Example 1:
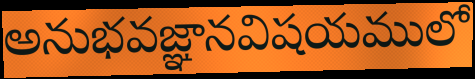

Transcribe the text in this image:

అనుభవజ్ఞానవిషయములో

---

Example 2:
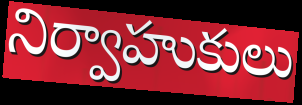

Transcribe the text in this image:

నిర్వాహుకులు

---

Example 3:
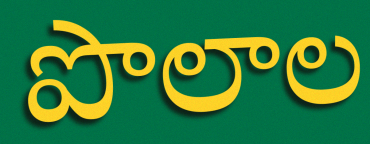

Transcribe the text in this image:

పొలాల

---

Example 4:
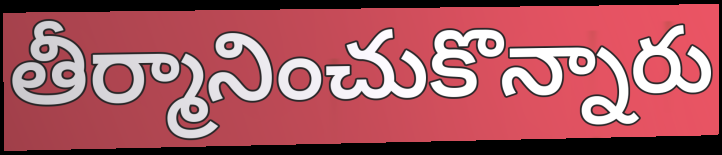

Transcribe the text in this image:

తీర్మానించుకొన్నారు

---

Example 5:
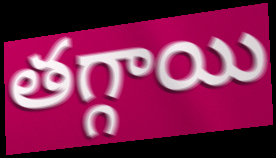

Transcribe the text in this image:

తగ్గాయి